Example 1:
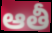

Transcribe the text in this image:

ఆతీ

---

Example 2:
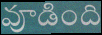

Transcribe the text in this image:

వూడింది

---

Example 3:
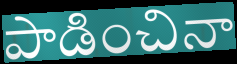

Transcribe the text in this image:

పాడించినా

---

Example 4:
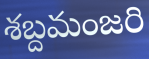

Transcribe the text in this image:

శబ్దమంజరి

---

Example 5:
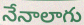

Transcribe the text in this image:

నేనాలాగు